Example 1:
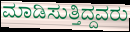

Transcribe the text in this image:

ಮಾಡಿಸುತ್ತಿದ್ದವರು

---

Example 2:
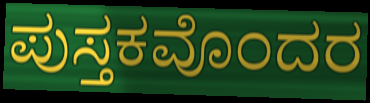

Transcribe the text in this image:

ಪುಸ್ತಕವೊಂದರ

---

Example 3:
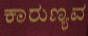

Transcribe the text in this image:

ಕಾರುಣ್ಯವ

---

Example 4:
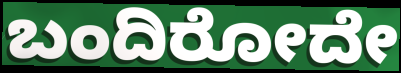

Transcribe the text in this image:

ಬಂದಿರೋದೇ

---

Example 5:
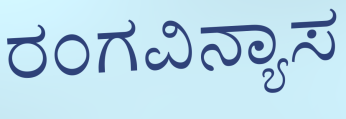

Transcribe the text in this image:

ರಂಗವಿನ್ಯಾಸ